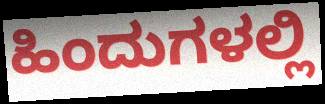
ಹಿಂದುಗಳಲ್ಲಿ